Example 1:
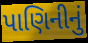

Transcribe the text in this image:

પાણિનીનું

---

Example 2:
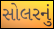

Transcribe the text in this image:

સોલરનું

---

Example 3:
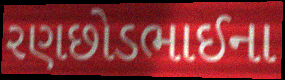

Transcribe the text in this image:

રણછોડભાઈના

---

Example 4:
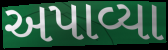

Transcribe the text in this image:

અપાવ્યા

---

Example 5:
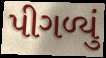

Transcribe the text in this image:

પીગળ્યું